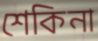
শেকিনা